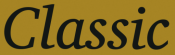
Classic